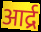
आर्द्र